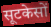
सूटकेसों